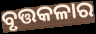
ବୃତ୍ତକଳାର